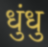
धुंधु